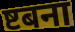
ष्टबना